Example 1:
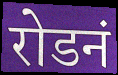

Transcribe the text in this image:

रोडनं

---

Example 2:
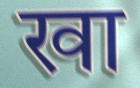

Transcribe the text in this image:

खा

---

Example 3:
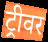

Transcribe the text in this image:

ट्रीवर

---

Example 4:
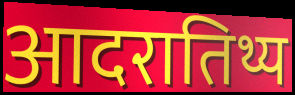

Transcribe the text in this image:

आदरातिथ्य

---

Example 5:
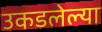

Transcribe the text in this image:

उकडलेल्या